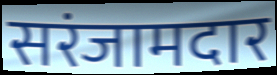
सरंजामदार